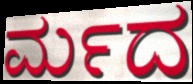
ರ್ಮದ